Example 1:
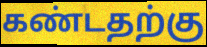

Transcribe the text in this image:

கண்டதற்கு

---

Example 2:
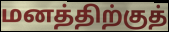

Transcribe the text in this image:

மனத்திற்குத்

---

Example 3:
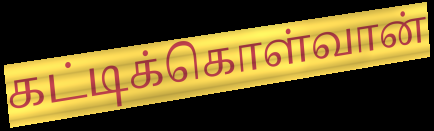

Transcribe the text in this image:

கட்டிக்கொள்வான்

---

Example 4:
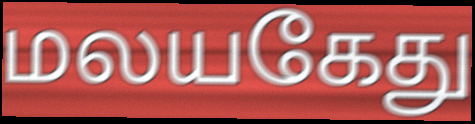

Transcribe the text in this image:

மலயகேது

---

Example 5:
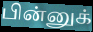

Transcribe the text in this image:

பின்னுக்